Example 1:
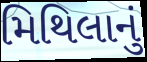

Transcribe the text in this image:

મિથિલાનું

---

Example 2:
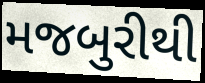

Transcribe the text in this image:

મજબુરીથી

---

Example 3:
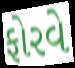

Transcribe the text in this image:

ફોરવે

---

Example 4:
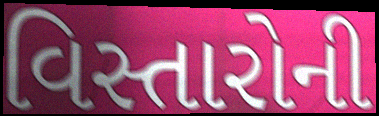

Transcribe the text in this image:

વિસ્તારોની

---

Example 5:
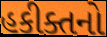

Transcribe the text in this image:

હકીક્તનો